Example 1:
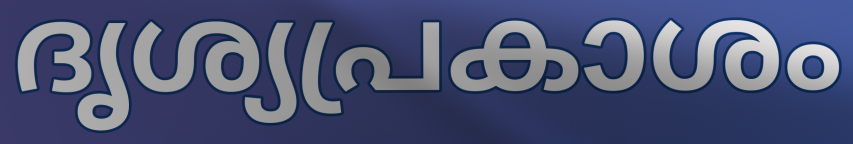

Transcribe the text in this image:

ദൃശ്യപ്രകാശം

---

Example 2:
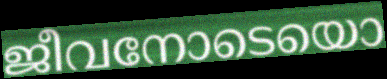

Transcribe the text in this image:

ജീവനോടെയൊ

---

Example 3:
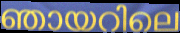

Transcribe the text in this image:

ഞായറിലെ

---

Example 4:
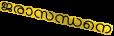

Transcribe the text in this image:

ജരാസന്ധനെ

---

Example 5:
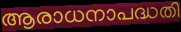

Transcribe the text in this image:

ആരാധനാപദ്ധതി